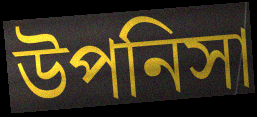
উপনিসা